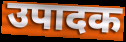
उपादक